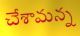
చేశామన్న